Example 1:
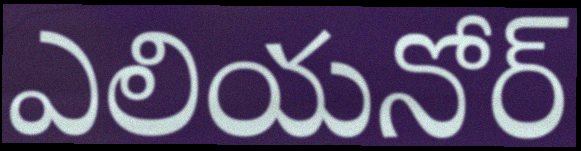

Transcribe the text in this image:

ఎలియనోర్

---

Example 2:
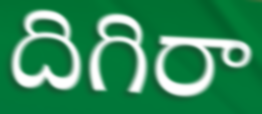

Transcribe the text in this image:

దిగిరా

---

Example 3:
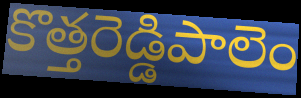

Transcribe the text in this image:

కొత్తరెడ్డిపాలెం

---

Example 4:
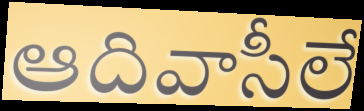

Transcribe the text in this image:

ఆదివాసీలే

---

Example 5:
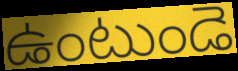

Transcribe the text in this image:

ఉంటుండె